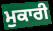
ਮੁਕਾਰੀ